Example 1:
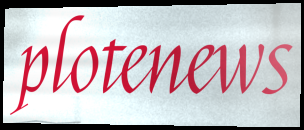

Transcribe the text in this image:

plotenews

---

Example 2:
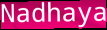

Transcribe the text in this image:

Nadhaya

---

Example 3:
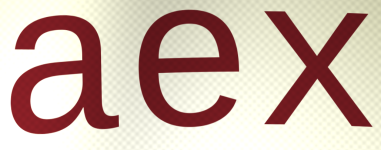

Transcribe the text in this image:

aex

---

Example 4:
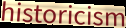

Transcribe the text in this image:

historicism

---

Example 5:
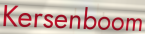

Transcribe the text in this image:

Kersenboom